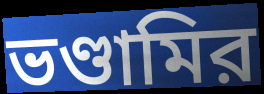
ভণ্ডামির